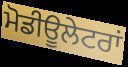
ਮੋਡੀਊਲੇਟਰਾਂ